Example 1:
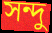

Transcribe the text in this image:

সন্দু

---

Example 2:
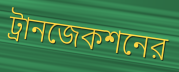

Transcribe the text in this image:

ট্রানজেকশনের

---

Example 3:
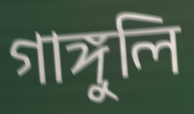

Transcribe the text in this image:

গাঙ্গুলি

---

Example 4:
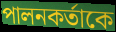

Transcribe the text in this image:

পালনকর্তাকে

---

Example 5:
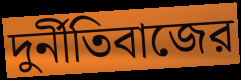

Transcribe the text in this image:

দুর্নীতিবাজের